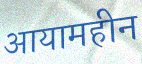
आयामहीन